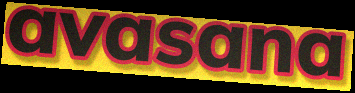
avasana